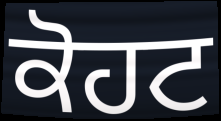
ਕੋਹਟ